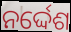
ନର୍ଦ୍ଦେଶ